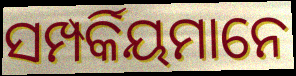
ସମ୍ପର୍କିୟମାନେ